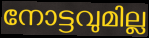
നോട്ടവുമില്ല